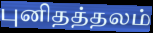
புனிதத்தலம்